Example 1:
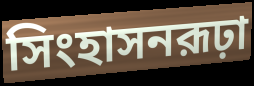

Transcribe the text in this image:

সিংহাসনরূঢ়া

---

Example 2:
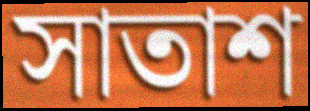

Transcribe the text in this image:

সাতাশ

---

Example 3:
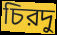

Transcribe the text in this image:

চিরদু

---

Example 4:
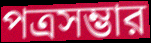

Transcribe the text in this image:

পত্রসম্ভার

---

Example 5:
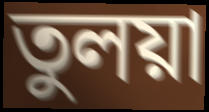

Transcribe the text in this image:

তুলয়া